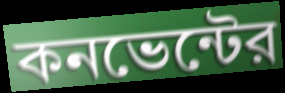
কনভেন্টের